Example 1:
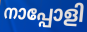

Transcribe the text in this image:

നാപ്പോളി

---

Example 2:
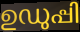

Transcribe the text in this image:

ഉഡുപ്പി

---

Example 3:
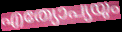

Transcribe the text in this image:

എത്യോപ്യയും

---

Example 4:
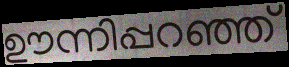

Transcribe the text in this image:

ഊന്നിപ്പറഞ്ഞ്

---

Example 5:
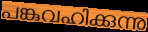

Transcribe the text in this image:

പങ്കുവഹിക്കുന്നു